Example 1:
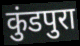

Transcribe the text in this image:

कुंडपुरा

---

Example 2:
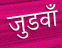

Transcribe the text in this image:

जुडवाँ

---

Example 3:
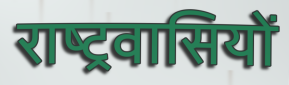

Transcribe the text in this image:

राष्ट्रवासियों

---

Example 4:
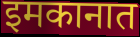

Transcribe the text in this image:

इमकानात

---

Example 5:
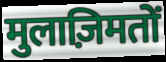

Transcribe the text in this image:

मुलाज़िमतों